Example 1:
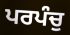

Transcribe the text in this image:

ਪਰਪੰਚੁ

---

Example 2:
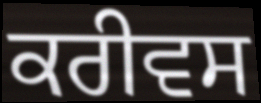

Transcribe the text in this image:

ਕਰੀਵਸ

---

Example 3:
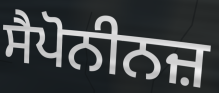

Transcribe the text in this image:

ਸੈਪੋਨੀਨਜ਼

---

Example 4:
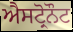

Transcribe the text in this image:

ਐਸਟ੍ਰੋਨੌਟ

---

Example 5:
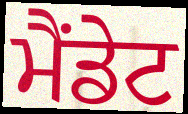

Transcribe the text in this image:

ਮੈਂਡੇਟ